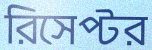
রিসেপ্টর